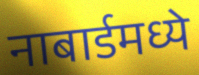
नाबार्डमध्ये